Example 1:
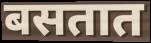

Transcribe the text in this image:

बसतात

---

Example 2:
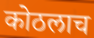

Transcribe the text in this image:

कोठलाच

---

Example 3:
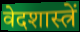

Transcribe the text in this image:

वेदशास्त्रें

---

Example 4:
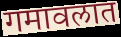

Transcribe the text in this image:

गमावलात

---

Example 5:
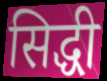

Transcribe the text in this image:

सिद्धी